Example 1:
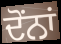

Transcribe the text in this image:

ਦੋਂਨਾਂ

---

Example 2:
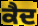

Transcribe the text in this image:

ਕੈਦ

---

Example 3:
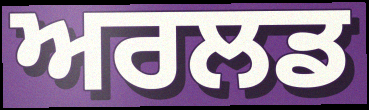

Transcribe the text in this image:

ਅਰਲਡ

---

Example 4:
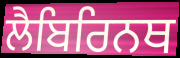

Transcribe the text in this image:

ਲੈਬਿਰਿਨਥ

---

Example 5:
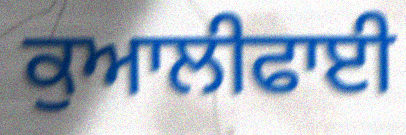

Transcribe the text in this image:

ਕੁਆਲੀਫਾਈ